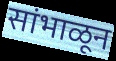
सांभाळून